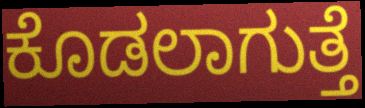
ಕೊಡಲಾಗುತ್ತೆ